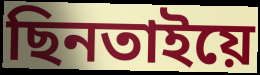
ছিনতাইয়ে